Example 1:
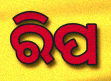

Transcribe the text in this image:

ରିପ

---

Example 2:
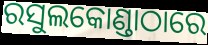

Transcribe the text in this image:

ରସୁଲକୋଣ୍ଡାଠାରେ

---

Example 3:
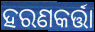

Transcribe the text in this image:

ହରଣକର୍ତ୍ତା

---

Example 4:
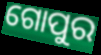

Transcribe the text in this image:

ଗୋପୁର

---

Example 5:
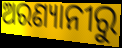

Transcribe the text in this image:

ଅରଣ୍ୟାନୀରୁ